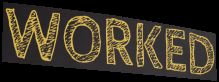
WORKED